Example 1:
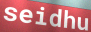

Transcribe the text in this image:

seidhu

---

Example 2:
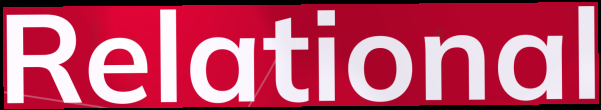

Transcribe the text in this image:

Relational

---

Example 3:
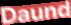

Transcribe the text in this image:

Daund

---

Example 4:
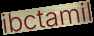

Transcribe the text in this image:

ibctamil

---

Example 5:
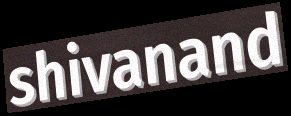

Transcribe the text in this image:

shivanand